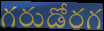
గరుడోరగ